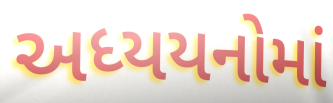
અધ્યયનોમાં